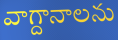
వాగ్దానాలను